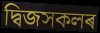
দ্বিজসকলৰ